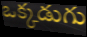
ఒక్కడుగు